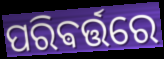
ପରିଵର୍ତ୍ତରେ